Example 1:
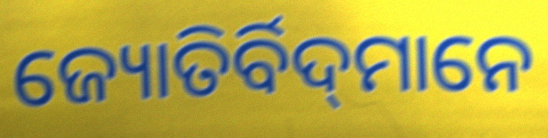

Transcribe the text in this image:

ଜ୍ୟୋତିର୍ବିଦ୍‌ମାନେ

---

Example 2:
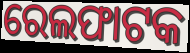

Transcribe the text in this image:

ରେଲଫାଟକ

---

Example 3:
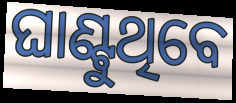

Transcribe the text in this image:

ଘାଣ୍ଟୁଥିବେ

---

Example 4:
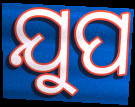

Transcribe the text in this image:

ଯୁପ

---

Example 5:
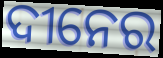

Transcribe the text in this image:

ଦୀନେର